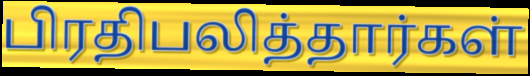
பிரதிபலித்தார்கள்